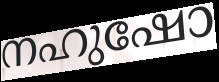
നഹുഷോ